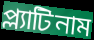
প্ল্যাটিনাম